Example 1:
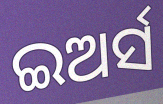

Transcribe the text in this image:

ଇଅର୍ସ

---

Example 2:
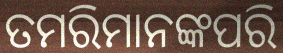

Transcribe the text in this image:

ତମରିମାନଙ୍କପରି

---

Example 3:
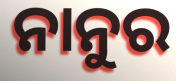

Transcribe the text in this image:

ନାନୁର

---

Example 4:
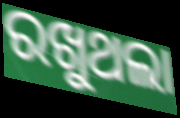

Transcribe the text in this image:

ରଖୁଥଲା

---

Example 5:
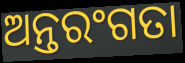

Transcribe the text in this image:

ଅନ୍ତରଂଗତା